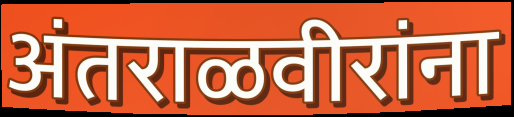
अंतराळवीरांना